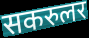
सकरुलर